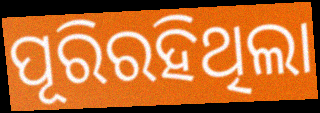
ପୂରିରହିଥିଲା